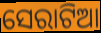
ସେରାଟିଆ